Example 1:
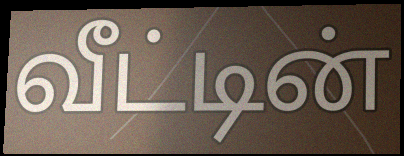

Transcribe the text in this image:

வீட்டின்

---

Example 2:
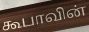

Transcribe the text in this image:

கூபாவின்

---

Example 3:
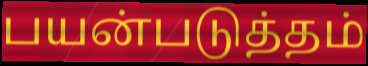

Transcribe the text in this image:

பயன்படுத்தம்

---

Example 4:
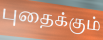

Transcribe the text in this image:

புதைக்கும்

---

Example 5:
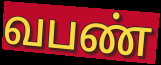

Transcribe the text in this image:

வபண்